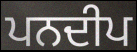
ਪਨਦੀਪ